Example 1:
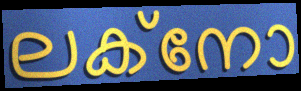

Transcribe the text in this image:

ലക്നോ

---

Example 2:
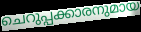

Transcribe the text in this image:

ചെറുപ്പക്കാരനുമായ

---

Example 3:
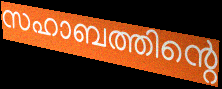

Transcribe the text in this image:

സഹാബത്തിന്റെ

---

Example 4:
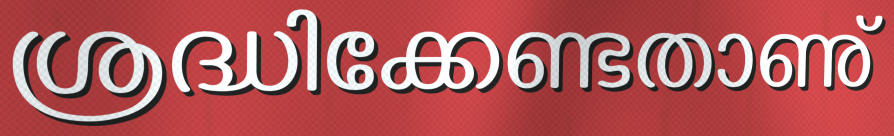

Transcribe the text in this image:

ശ്രദ്ധിക്കേണ്ടതാണു്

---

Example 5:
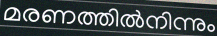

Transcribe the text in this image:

മരണത്തിൽനിന്നും